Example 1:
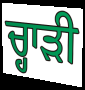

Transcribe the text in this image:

ਚ੍ਹਾੜੀ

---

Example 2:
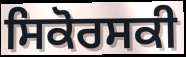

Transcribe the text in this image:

ਸਿਕੋਰਸਕੀ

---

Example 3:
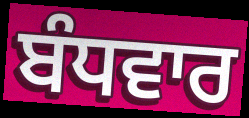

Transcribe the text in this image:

ਬੰਧਵਾਰ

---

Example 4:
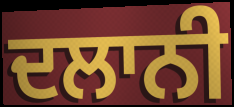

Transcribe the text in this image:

ਦਲਾਨੀ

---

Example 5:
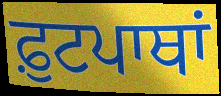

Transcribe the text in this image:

ਫ਼ੁਟਪਾਥਾਂ